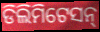
ଡିଲିମିଟେସନ୍